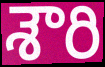
శౌరి